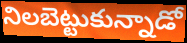
నిలబెట్టుకున్నాడో